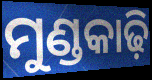
ମୁଣ୍ଡକାଢ଼ି